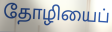
தோழியைப்